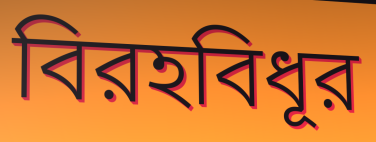
বিরহবিধূর